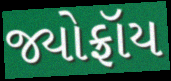
જ્યોફ્રૉય